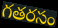
గతరసం